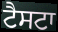
ਟੈਸਟਾ